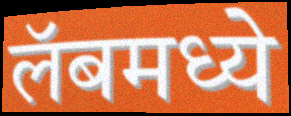
लॅबमध्ये